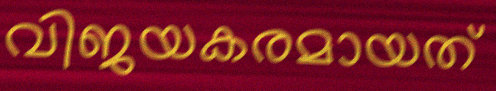
വിജയകരമായത്